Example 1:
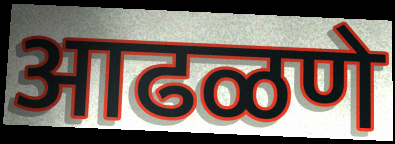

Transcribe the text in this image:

आढळणे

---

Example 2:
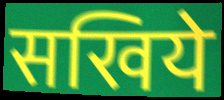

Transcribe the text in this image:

सखिये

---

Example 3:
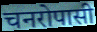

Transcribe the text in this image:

चनरोपासी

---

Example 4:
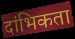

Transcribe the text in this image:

दांभिकता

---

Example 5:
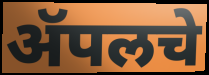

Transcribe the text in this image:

ॲपलचे